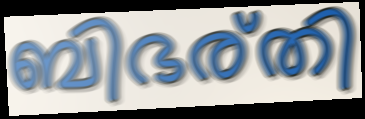
ബിഭര്തി